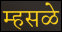
म्हसळे